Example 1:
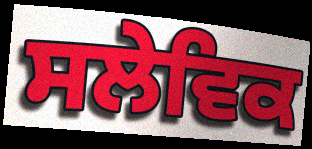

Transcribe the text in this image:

ਸਲੇਵਿਕ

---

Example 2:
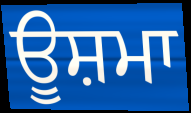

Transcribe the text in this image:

ਊਸ਼ਮਾ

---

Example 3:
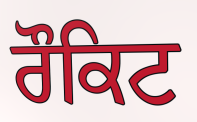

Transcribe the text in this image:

ਰੌਕਿਟ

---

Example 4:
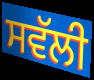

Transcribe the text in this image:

ਸਵੱਲੀ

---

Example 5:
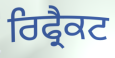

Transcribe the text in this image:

ਰਿਫ੍ਰੈਕਟ